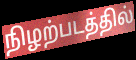
நிழற்படத்தில்